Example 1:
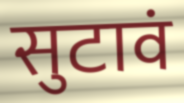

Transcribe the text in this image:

सुटावं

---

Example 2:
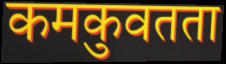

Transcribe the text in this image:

कमकुवतता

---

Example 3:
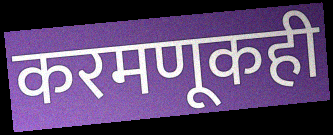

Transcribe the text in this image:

करमणूकही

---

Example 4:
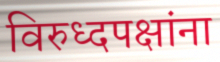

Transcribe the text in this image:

विरुध्दपक्षांना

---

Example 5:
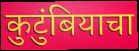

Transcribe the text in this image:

कुटुंबियाचा